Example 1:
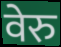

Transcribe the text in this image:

वेरु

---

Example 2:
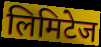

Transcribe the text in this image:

लिमिटेज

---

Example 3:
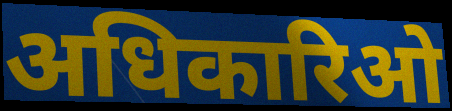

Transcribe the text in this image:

अधिकारिओ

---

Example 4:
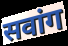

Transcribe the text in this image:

सवांग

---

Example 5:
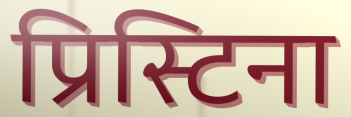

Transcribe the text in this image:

प्रिस्टिना